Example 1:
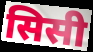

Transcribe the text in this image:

सिसी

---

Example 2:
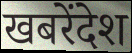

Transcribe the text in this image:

खबरेंदेश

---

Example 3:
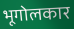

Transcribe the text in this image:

भूगोलकार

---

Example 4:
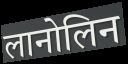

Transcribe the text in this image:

लानोलिन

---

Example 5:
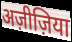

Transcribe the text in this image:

अज़ीज़िया